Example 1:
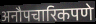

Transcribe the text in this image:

अनौपचारिकपणे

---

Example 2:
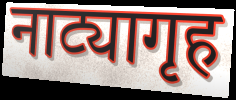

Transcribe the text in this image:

नाट्यागृह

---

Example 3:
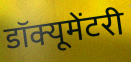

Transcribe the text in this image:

डॉक्यूमेंटरी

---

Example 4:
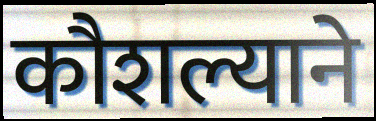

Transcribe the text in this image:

कौशल्याने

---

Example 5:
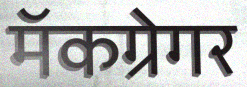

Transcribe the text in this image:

मॅकग्रेगर